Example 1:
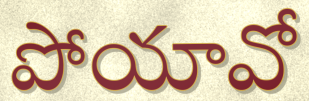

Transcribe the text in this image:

పోయావో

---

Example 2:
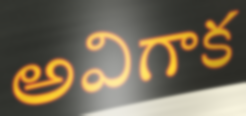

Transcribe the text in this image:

అవిగాక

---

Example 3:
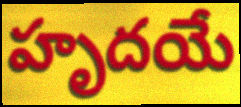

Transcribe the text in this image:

హృదయే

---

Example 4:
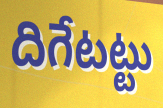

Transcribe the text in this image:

దిగేటట్టు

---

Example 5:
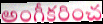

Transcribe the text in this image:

అంగీకరించ